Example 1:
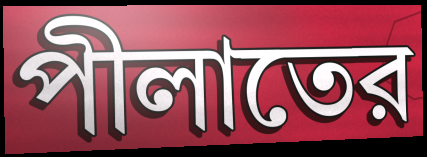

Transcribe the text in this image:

পীলাতের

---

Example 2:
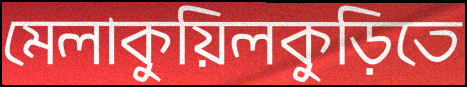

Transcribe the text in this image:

মেলাকুয়িলকুড়িতে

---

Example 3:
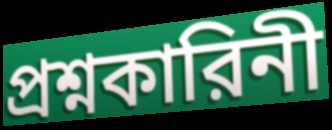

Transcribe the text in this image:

প্রশ্নকারিনী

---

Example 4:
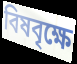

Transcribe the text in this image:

বিষবৃক্ষে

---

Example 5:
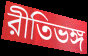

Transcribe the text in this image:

রীতিভঙ্গ